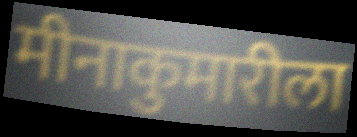
मीनाकुमारीला